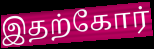
இதற்கோர்